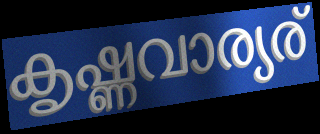
കൃഷ്ണവാര്യര്